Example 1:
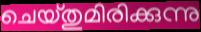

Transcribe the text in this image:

ചെയ്തുമിരിക്കുന്നു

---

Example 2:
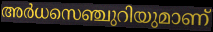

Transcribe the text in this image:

അർധസെഞ്ചുറിയുമാണ്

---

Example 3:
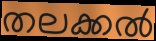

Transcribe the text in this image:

തലക്കൽ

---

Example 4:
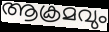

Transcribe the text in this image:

ആക്രമവും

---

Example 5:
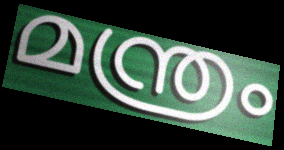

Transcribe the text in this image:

മന്ത്രം